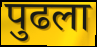
पुढला